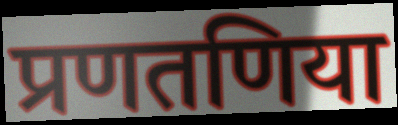
प्रणतणिया